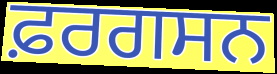
ਫ਼ਰਗਸਨ